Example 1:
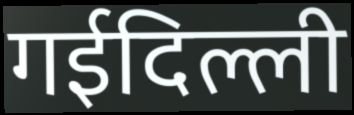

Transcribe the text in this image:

गईदिल्ली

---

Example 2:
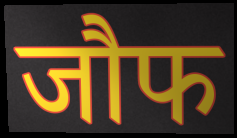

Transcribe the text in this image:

जौफ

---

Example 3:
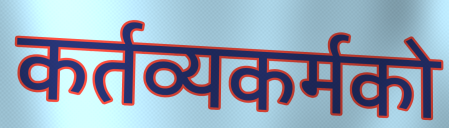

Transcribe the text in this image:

कर्तव्यकर्मको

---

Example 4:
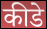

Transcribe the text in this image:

कीडे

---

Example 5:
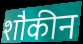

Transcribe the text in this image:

शौकीन